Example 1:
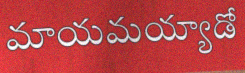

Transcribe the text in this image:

మాయమయ్యాడో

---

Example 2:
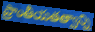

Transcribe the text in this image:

ప్రాంతీయతత్వాన్ని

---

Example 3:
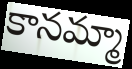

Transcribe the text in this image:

కానమ్మా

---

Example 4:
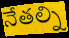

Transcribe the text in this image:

నేతల్ని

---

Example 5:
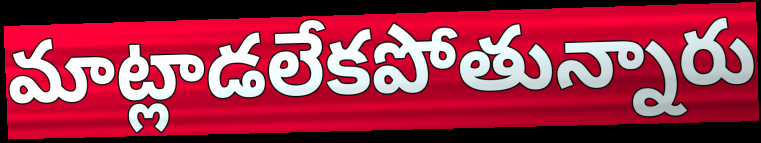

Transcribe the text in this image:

మాట్లాడలేకపోతున్నారు